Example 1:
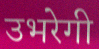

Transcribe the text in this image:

उभरेगी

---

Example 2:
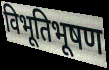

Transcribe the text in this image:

विभूतिभूषण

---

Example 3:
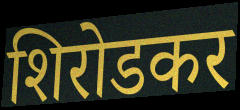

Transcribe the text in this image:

शिरोडकर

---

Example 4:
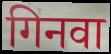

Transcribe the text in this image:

गिनवा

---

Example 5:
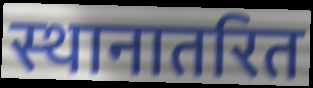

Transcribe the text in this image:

स्थानातरित